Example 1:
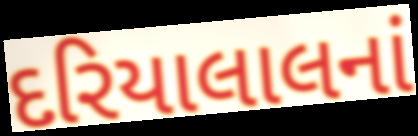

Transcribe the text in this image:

દરિયાલાલનાં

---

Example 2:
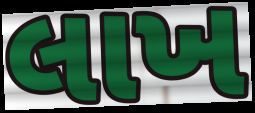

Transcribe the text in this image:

લાખ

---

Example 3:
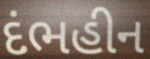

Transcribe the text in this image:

દંભહીન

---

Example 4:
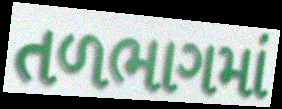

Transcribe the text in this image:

તળભાગમાં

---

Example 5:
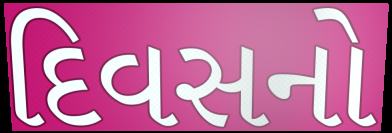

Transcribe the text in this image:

દિવસનો